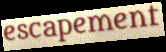
escapement